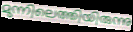
മുന്നിലെത്തിയിരുന്നു